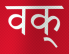
वक्